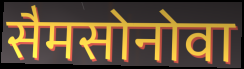
सैमसोनोवा